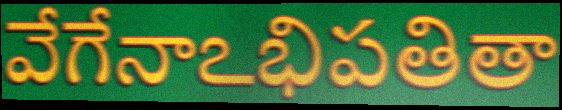
వేగేనాఽభిపతితా